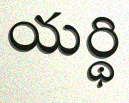
యర్థి